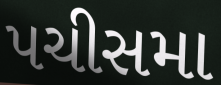
પચીસમા